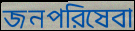
জনপরিষেবা